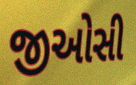
જીઓસી